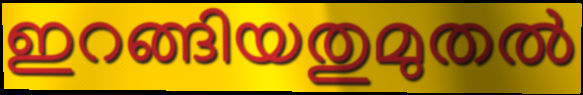
ഇറങ്ങിയതുമുതൽ